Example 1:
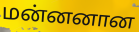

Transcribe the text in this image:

மன்னனான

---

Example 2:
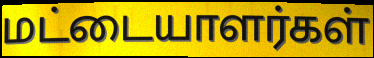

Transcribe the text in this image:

மட்டையாளர்கள்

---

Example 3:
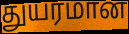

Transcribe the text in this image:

துயரமான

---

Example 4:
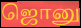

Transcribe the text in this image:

ஜொனு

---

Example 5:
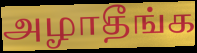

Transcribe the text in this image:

அழாதீங்க